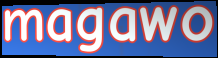
magawo